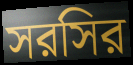
সরসির